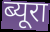
ब्यूरा